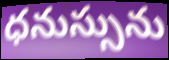
ధనుస్సును